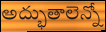
అద్భుతాలెన్నో